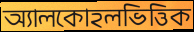
অ্যালকোহলভিত্তিক